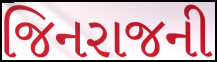
જિનરાજની